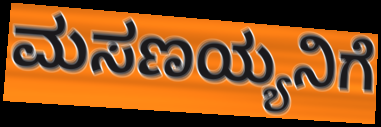
ಮಸಣಯ್ಯನಿಗೆ